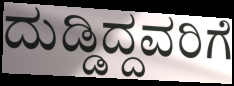
ದುಡ್ಡಿದ್ದವರಿಗೆ